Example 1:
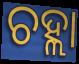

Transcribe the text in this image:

ଚହ୍ଲା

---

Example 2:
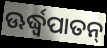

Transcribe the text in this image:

ଊର୍ଦ୍ଧ୍ବପାତନ୍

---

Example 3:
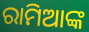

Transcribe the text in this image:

ରାମିଆଙ୍କ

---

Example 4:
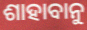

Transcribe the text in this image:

ଶାହାବାନୁ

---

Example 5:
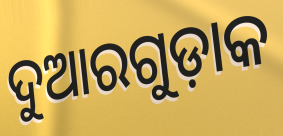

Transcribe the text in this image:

ଦୁଆରଗୁଡ଼ାକ